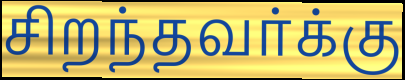
சிறந்தவர்க்கு